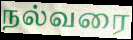
நல்வரை